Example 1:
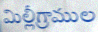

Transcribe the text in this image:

మిల్లీగ్రాముల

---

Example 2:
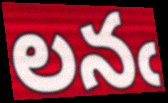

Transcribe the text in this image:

లనఁ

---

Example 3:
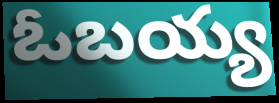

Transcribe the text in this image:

ఓబయ్య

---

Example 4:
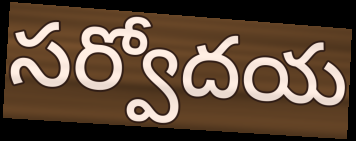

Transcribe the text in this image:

సర్వోదయ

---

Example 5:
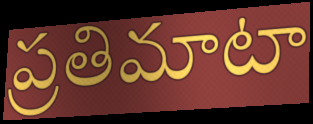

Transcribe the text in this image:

ప్రతిమాటా